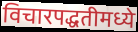
विचारपद्धतीमध्ये